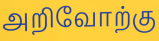
அறிவோற்கு